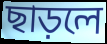
ছাড়লে